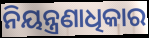
ନିୟନ୍ତ୍ରଣାଧିକାର